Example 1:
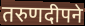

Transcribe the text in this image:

तरुणदीपने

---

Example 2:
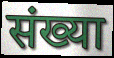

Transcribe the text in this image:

संख्या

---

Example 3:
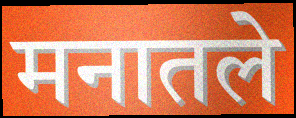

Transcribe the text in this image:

मनातले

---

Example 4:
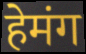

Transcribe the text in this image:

हेमंग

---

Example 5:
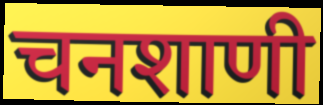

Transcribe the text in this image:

चनशाणी